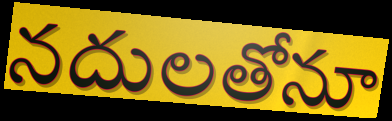
నదులతోనూ